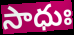
సాధుః